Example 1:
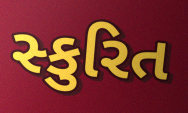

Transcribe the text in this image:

સ્કુરિત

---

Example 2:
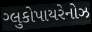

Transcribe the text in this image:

ગ્લુકોપાયરેનોઝ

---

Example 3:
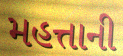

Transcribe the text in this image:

મહત્તાની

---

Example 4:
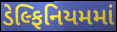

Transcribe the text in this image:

ડેલ્ફિનિયમમાં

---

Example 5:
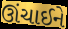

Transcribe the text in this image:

ઊંચાઈને